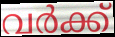
വർക്ക്